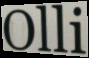
Olli